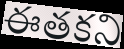
ఈతకని